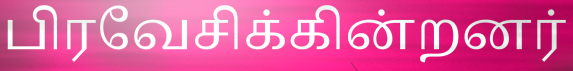
பிரவேசிக்கின்றனர்